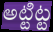
అట్టిట్ట